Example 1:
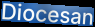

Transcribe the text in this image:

Diocesan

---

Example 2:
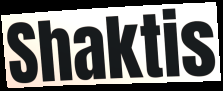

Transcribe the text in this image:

Shaktis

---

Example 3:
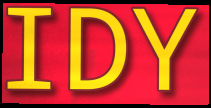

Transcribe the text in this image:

IDY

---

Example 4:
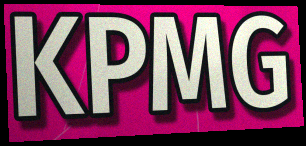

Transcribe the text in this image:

KPMG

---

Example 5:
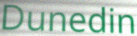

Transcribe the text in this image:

Dunedin